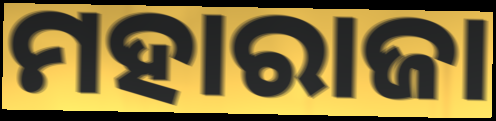
ମହାରାଜା